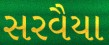
સરવૈયા